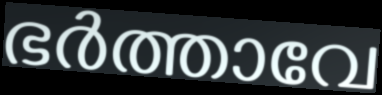
ഭർത്താവേ